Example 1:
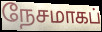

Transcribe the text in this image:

நேசமாகப்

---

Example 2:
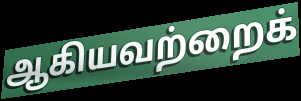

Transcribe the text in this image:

ஆகியவற்றைக்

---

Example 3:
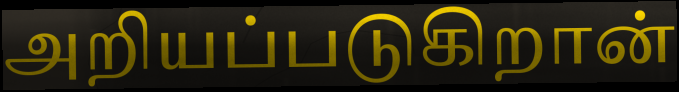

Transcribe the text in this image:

அறியப்படுகிறான்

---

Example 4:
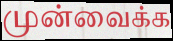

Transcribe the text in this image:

முன்வைக்க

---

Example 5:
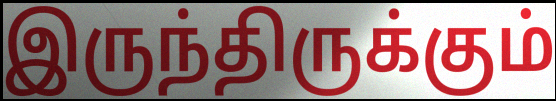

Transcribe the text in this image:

இருந்திருக்கும்